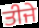
ਤੀਜੇ